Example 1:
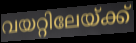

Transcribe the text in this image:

വയറ്റിലേയ്ക്ക്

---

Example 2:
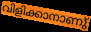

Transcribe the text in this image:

വിളിക്കാനാണു്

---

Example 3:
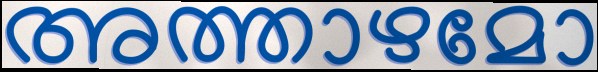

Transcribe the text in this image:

അത്താഴമോ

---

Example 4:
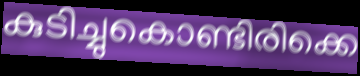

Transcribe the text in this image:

കുടിച്ചുകൊണ്ടിരിക്കെ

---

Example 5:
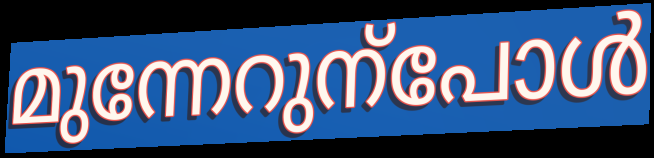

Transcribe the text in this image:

മുന്നേറുന്പോൾ